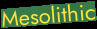
Mesolithic